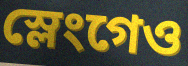
স্লেংগেও